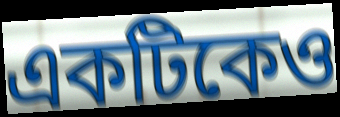
একটিকেও